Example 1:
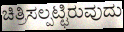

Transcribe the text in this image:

ಚಿತ್ರಿಸಲ್ಪಟ್ಟಿರುವುದು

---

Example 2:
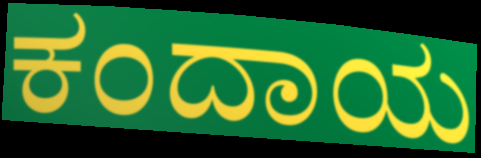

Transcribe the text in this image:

ಕಂದಾಯ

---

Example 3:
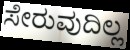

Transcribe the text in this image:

ಸೇರುವುದಿಲ್ಲ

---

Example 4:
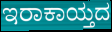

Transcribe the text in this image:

ಇರಾಕಾಯ್ತದ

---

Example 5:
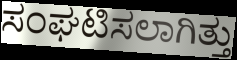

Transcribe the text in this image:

ಸಂಘಟಿಸಲಾಗಿತ್ತು